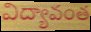
విద్యావంత